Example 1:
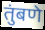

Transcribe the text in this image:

तुंबणे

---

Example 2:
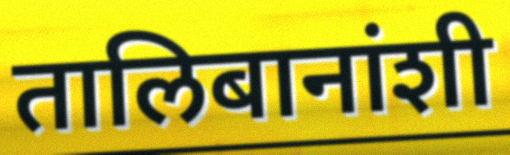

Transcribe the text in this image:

तालिबानांशी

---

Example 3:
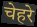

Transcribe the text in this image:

चेहरे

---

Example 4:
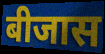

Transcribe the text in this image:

बीजास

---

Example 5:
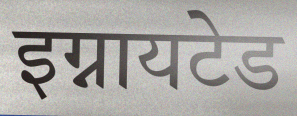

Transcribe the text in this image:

इग्नायटेड